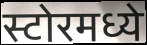
स्टोरमध्ये